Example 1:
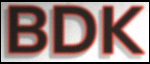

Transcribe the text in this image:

BDK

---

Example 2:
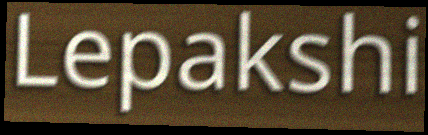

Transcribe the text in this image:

Lepakshi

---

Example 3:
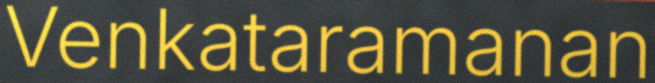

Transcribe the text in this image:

Venkataramanan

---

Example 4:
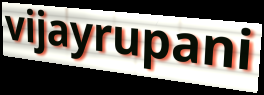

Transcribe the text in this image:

vijayrupani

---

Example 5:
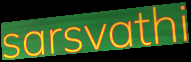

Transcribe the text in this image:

sarsvathi